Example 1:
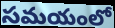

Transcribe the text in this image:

సమయంలో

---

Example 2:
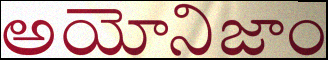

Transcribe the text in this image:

అయోనిజాం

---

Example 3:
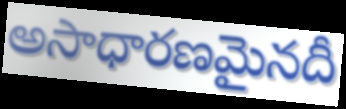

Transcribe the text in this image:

అసాధారణమైనదీ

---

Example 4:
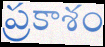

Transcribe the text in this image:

ప్రకాశం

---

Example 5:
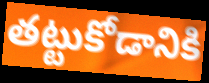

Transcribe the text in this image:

తట్టుకోడానికి